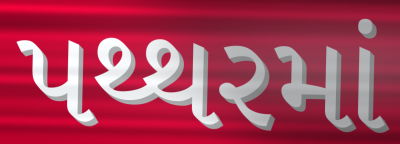
પથ્થરમાં